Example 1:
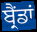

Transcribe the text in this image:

ਬ੍ਰੈਂਡਾਂ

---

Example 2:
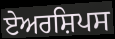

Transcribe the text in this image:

ਏਅਰਸ਼ਿਪਸ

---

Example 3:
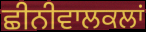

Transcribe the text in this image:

ਛੀਨੀਵਾਲਕਲਾਂ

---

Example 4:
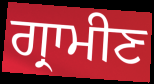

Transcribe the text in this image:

ਗ੍ਰਾਮੀਣ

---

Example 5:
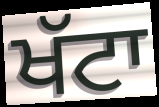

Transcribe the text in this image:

ਖੱਟਾ